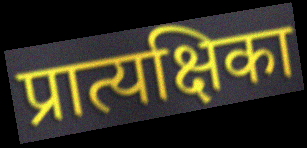
प्रात्यक्षिका